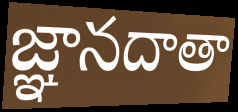
జ్ఞానదాతా